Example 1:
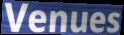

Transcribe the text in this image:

Venues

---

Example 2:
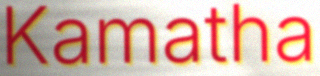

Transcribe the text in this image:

Kamatha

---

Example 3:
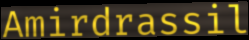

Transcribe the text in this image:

Amirdrassil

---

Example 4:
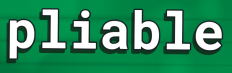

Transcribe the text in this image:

pliable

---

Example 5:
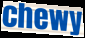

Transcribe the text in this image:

chewy